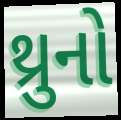
થ્રુનો